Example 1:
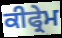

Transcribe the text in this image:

ਕੀਫ੍ਰੇਮ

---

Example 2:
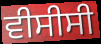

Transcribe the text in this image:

ਵੀਸੀਸੀ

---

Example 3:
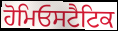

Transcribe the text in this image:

ਹੋਮਿਓਸਟੈਟਿਕ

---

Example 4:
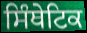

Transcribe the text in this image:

ਸਿੰਥੇਟਿਕ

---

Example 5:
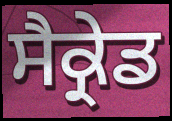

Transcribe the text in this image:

ਸੈਕ੍ਰੇਡ